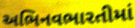
અભિનવભારતીમાં